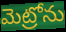
మెట్రోను